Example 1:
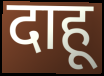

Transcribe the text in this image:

दाहू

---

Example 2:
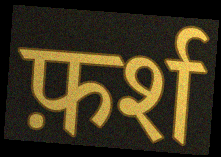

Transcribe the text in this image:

फ़र्श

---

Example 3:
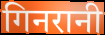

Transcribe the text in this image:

गिनरानी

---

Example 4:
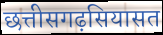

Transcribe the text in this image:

छत्तीसगढ़सियासत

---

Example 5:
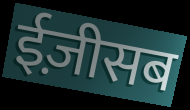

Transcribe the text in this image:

ईज़ीसब